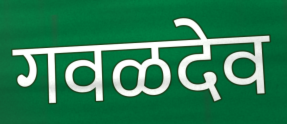
गवळदेव